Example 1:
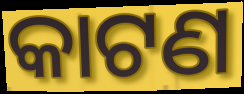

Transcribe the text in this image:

କାଟଣ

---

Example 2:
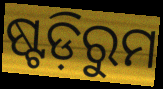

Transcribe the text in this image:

ଷ୍ଟଡ଼ିରୁମ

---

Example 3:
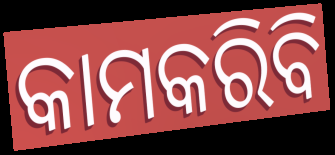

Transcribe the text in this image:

କାମକରିବି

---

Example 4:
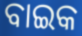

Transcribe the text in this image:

ବାଇକ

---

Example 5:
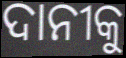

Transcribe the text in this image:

ଦାନୀକୁ